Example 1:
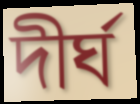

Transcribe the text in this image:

দীৰ্ঘ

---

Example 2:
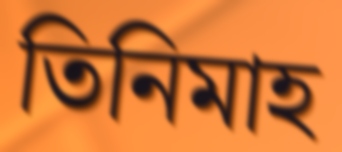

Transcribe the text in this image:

তিনিমাহ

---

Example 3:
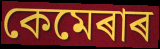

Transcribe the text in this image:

কেমেৰাৰ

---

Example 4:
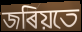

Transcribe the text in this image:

জৰিয়তে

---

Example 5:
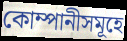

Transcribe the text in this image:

কোম্পানীসমূহে